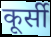
कूर्सी